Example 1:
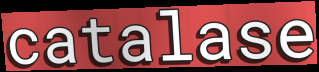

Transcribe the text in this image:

catalase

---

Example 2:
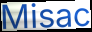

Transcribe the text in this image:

Misac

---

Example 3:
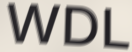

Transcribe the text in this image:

WDL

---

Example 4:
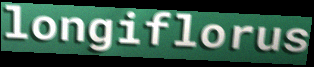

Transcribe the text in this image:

longiflorus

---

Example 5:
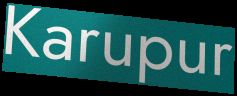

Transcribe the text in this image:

Karupur